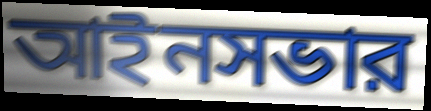
আইনসভার